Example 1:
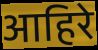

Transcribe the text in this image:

आहिरे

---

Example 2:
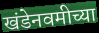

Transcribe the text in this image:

खंडेनवमीच्या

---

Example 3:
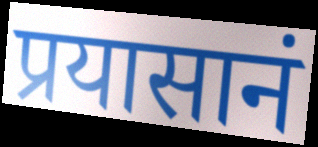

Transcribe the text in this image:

प्रयासानं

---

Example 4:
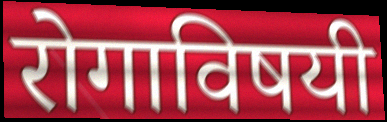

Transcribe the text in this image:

रोगाविषयी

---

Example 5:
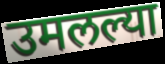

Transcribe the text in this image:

उमलल्या